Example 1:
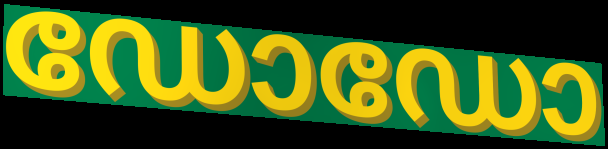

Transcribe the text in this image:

ഡോഡോ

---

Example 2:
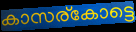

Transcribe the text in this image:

കാസര്കോട്ടെ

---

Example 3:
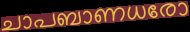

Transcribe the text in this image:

ചാപബാണധരോ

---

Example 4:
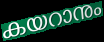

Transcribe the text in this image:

കയറാനും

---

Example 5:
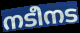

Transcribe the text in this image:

നടീനട